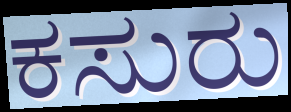
ಕಸುರು